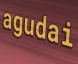
agudai